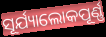
ସୂର୍ଯ୍ୟାଲୋକପୂର୍ଣ୍ଣ